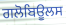
ਗਲੋਬਿਊਲਸ